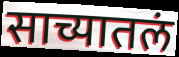
साच्यातलं